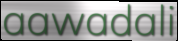
aawadali